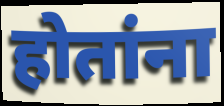
होतांना